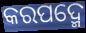
କରପଦ୍ମେ